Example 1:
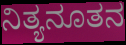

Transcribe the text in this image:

ನಿತ್ಯನೂತನ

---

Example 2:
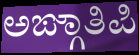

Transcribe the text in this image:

ಅಙ್ಗಾತಿಪಿ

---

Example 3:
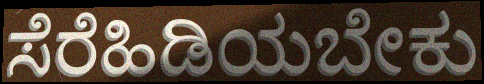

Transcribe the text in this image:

ಸೆರೆಹಿಡಿಯಬೇಕು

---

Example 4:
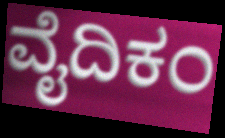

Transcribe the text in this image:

ವೈದಿಕಂ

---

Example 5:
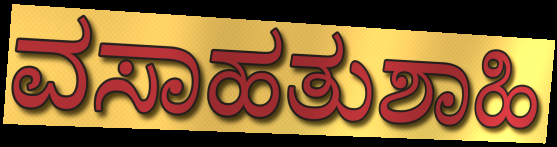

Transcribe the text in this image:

ವಸಾಹತುಶಾಹಿ